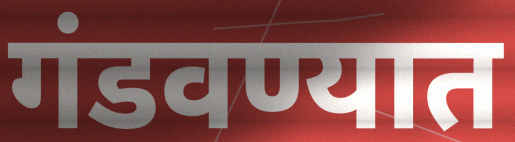
गंडवण्यात